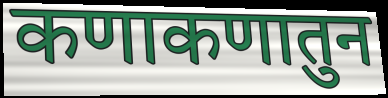
कणाकणातुन